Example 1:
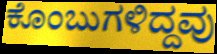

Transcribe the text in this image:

ಕೊಂಬುಗಳಿದ್ದವು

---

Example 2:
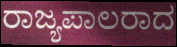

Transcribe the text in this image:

ರಾಜ್ಯಪಾಲರಾದ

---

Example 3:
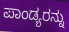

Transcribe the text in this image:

ಪಾಂಡ್ಯರನ್ನು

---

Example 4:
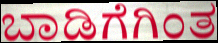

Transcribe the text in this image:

ಬಾಡಿಗೆಗಿಂತ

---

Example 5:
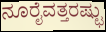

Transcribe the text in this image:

ನೂರೈವತ್ತರಷ್ಟು